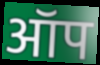
ऑप